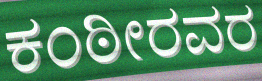
ಕಂಠೀರವರ